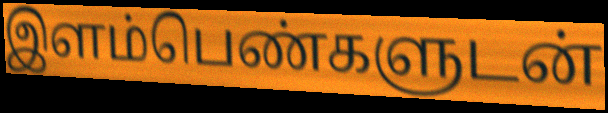
இளம்பெண்களுடன்